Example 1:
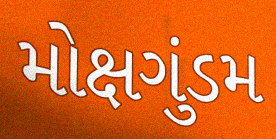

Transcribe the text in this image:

મોક્ષગુંડમ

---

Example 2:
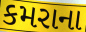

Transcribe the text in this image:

કમરાના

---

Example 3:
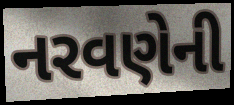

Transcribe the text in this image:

નરવણેની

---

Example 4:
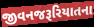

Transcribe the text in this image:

જીવનજરૂરિયાતના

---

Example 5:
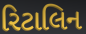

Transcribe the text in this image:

રિટાલિન